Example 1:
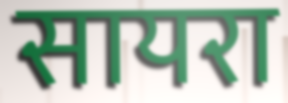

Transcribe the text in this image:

सायरा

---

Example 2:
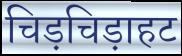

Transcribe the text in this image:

चिड़चिड़ाहट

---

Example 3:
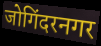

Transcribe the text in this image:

जोगिंदरनगर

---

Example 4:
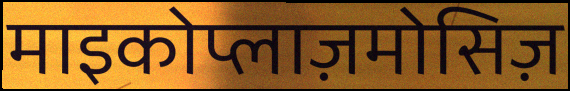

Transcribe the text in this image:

माइकोप्लाज़मोसिज़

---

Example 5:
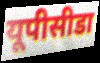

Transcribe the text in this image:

यूपीसीडा